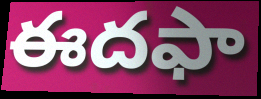
ఈదఫా